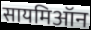
सायमिऑन